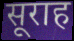
सूराह